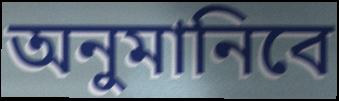
অনুমানিবে